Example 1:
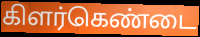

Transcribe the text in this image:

கிளர்கெண்டை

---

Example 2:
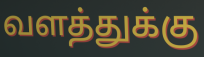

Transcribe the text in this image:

வளத்துக்கு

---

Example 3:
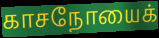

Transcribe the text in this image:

காசநோயைக்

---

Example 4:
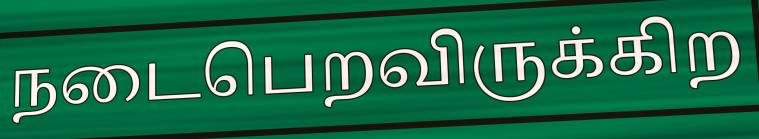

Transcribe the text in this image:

நடைபெறவிருக்கிற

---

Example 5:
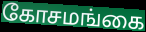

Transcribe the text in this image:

கோசமங்கை